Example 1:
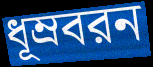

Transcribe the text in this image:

ধূম্রবরন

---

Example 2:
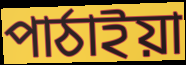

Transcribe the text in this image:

পাঠাইয়া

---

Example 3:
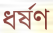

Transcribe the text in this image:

ধর্ষণ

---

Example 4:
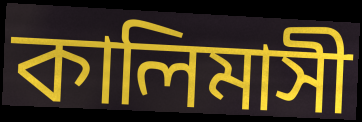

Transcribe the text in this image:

কালিমাসী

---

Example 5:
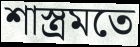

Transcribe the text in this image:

শাস্ত্রমতে